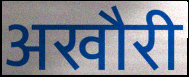
अखौरी